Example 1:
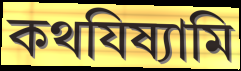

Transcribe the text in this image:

কথযিষ্যামি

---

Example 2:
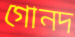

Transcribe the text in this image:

গোনদ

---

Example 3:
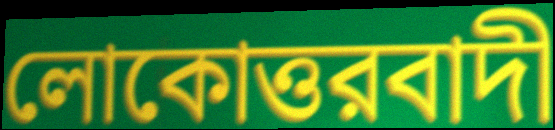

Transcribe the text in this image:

লোকোত্তরবাদী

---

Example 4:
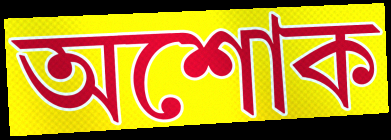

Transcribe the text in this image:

অশোক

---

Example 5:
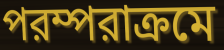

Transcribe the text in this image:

পরম্পরাক্রমে